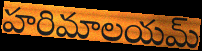
హరిమాలయమ్